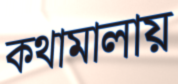
কথামালায়